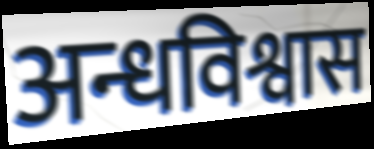
अन्धविश्वास